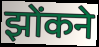
झोंकने